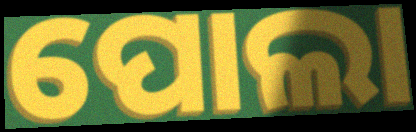
ପୋଲା